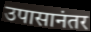
उपासानंतर